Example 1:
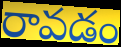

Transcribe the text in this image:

రావడం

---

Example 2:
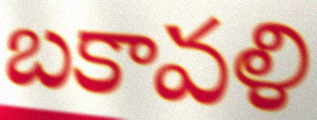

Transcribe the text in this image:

బకావళి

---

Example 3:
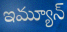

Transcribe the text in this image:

ఇమ్యూన్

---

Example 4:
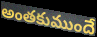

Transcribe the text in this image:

అంతకుముందే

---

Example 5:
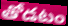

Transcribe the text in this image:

తోడటం